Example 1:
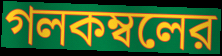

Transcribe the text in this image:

গলকম্বলের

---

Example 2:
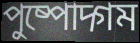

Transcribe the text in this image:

পুষ্পোদ্গম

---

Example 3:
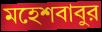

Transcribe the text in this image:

মহেশবাবুর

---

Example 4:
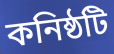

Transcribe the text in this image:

কনিষ্ঠটি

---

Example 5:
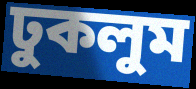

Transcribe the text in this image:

ঢুকলুম